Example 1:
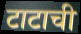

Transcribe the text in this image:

टाटाची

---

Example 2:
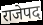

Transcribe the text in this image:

राजेपद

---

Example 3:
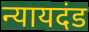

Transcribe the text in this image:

न्यायदंड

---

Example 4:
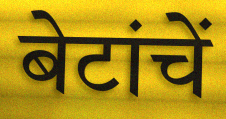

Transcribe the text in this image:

बेटांचें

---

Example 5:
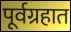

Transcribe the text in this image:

पूर्वग्रहात